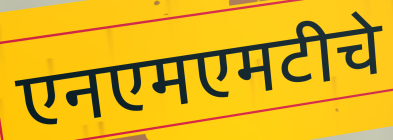
एनएमएमटीचे